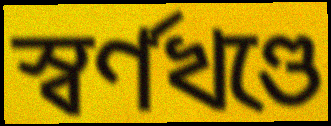
স্বর্ণখণ্ডে